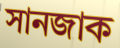
সানজাক